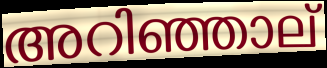
അറിഞ്ഞാല്